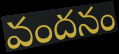
వందనం